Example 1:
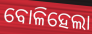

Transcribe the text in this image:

ବୋଳିହେଲା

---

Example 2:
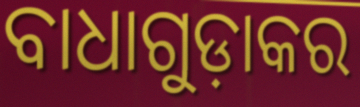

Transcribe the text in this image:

ବାଧାଗୁଡ଼ାକର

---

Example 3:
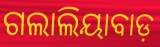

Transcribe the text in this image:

ଗଲାଲିୟାବାଡ଼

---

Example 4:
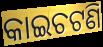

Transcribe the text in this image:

କାଇଚଟଣି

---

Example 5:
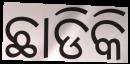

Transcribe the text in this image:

ଛାଡିକି